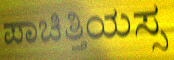
ಪಾಚಿತ್ತಿಯಸ್ಸ